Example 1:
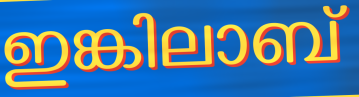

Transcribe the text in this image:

ഇങ്കിലാബ്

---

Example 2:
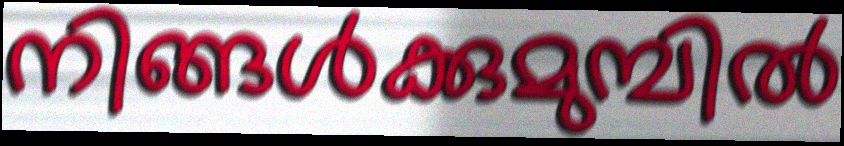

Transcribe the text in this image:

നിങ്ങൾക്കുമുമ്പിൽ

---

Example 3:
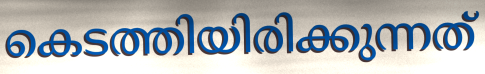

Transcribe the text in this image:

കെടത്തിയിരിക്കുന്നത്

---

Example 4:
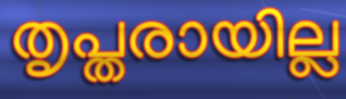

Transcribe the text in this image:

തൃപ്തരായില്ല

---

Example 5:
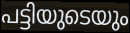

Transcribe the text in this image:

പട്ടിയുടെയും